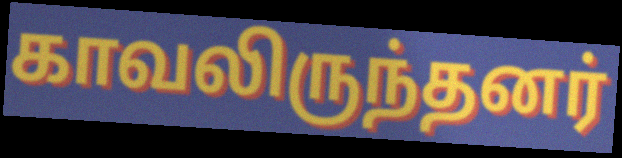
காவலிருந்தனர்